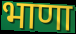
भाणा